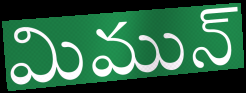
మిమున్